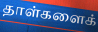
தாள்களைக்